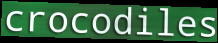
crocodiles